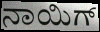
ನಾಯಿಗ್